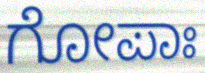
ಗೋಪಾಃ